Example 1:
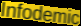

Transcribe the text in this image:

Infodemic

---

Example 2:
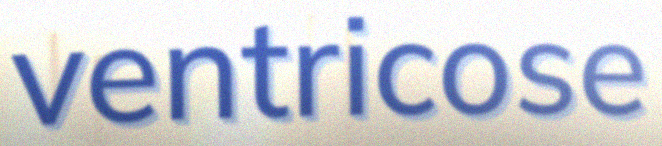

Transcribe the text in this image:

ventricose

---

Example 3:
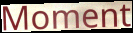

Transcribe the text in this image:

Moment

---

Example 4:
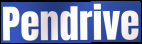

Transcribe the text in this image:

Pendrive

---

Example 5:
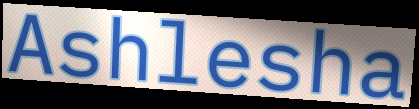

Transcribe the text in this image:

Ashlesha